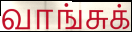
வாங்சுக்